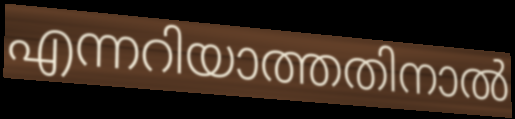
എന്നറിയാത്തതിനാൽ